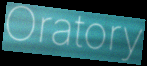
Oratory